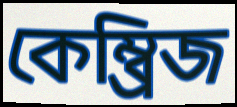
কেম্ব্রিজ